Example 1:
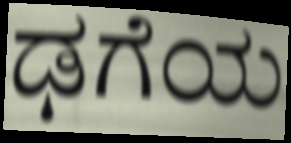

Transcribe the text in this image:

ಢಗೆಯ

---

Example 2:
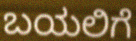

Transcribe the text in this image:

ಬಯಲಿಗೆ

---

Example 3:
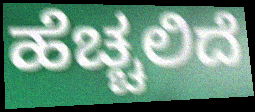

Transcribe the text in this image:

ಹೆಚ್ಚಲಿದೆ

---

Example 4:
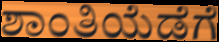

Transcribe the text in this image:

ಶಾಂತಿಯೆಡೆಗೆ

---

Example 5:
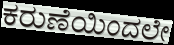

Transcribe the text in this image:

ಕರುಣೆಯಿಂದಲೇ